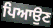
ਪਿਆਉਣ